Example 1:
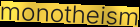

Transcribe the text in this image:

monotheism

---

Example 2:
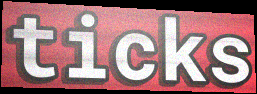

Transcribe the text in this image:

ticks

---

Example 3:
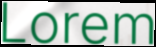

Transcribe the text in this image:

Lorem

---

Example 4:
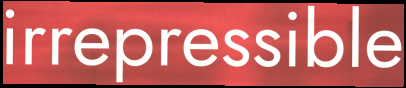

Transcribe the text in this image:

irrepressible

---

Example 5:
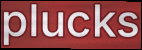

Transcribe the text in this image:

plucks